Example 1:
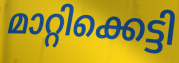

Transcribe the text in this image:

മാറ്റിക്കെട്ടി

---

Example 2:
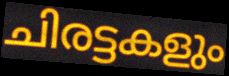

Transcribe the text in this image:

ചിരട്ടകളും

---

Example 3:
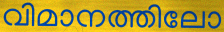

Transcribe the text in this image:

വിമാനത്തിലോ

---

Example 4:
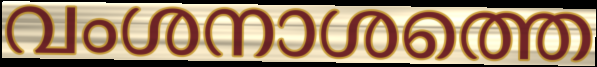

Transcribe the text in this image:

വംശനാശത്തെ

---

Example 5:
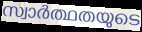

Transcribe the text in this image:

സ്വാർത്ഥതയുടെ